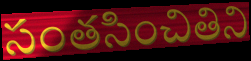
సంతసించితిని